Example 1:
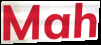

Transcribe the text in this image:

Mah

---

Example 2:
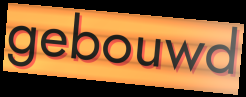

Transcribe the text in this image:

gebouwd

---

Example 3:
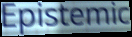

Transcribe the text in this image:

Epistemic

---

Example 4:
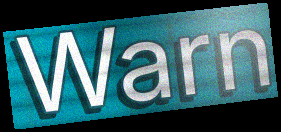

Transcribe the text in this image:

Warn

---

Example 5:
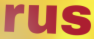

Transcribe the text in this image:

rus